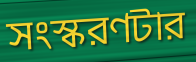
সংস্করণটার